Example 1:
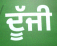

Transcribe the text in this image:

ਦੂੱਜੀ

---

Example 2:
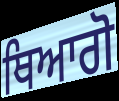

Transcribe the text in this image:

ਥਿਆਗੋ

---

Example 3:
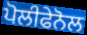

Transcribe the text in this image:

ਪੋਲੀਫੇਨੋਲ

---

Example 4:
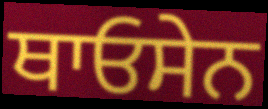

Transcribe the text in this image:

ਥਾਓਸੇਨ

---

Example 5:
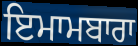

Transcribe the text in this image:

ਇਮਾਮਬਾਰਾ